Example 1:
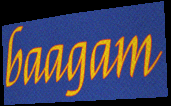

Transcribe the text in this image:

baagam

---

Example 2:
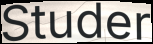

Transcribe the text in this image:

Studer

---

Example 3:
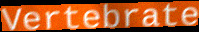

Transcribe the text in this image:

Vertebrate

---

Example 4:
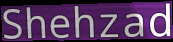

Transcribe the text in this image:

Shehzad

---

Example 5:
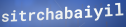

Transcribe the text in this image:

sitrchabaiyil